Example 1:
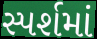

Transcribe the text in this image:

સ્પર્શમાં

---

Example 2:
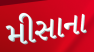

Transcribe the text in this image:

મીસાના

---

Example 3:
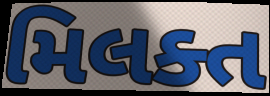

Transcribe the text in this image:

મિલક્ત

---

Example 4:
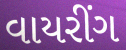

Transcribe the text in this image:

વાયરીંગ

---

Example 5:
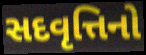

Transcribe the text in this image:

સદવૃત્તિનો